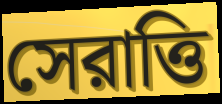
সেরাত্তি